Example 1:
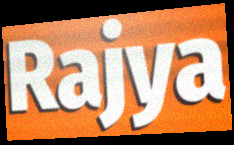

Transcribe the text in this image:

Rajya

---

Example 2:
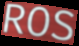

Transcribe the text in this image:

ROS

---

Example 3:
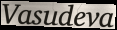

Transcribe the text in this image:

Vasudeva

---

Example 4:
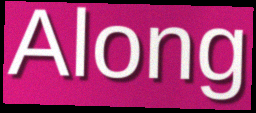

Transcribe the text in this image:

Along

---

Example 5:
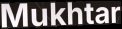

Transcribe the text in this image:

Mukhtar